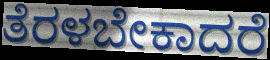
ತೆರಳಬೇಕಾದರೆ